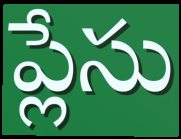
ప్లేసు